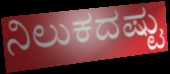
ನಿಲುಕದಷ್ಟು